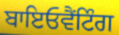
ਬਾਇਓਵੈਂਟਿੰਗ